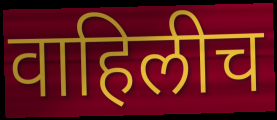
वाहिलीच